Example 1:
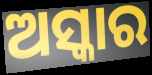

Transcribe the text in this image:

ଅସ୍କାର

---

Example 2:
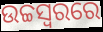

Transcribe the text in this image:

ଉଚ୍ଚସ୍ଵରରେ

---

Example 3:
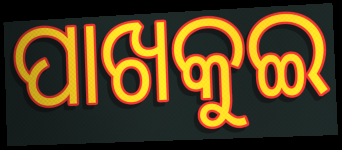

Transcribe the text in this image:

ପାଖକୁଇ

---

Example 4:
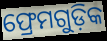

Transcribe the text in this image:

ଫ୍ରେମଗୁଡ଼ିକ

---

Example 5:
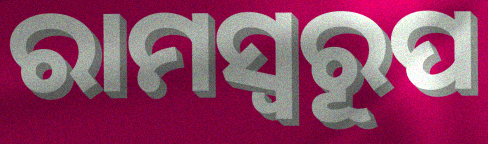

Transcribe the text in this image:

ରାମସ୍ୱରୂପ